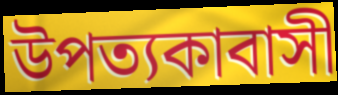
উপত্যকাবাসী